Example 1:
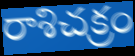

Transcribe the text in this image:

రాశిచక్రం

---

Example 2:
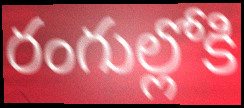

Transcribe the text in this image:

రంగుల్లోకి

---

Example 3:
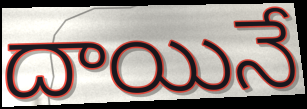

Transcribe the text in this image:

దాయినే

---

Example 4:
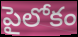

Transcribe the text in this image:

పైలోకం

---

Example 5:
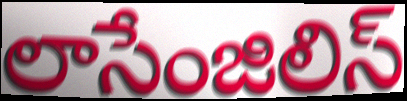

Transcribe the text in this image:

లాసేంజిలిస్